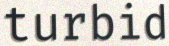
turbid